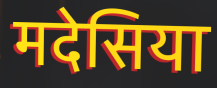
मदेसिया